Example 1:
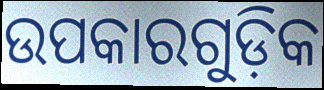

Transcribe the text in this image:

ଉପକାରଗୁଡ଼ିକ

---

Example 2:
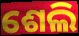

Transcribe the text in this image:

ଶେଲି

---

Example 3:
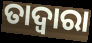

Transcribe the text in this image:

ତାଦ୍ବାରା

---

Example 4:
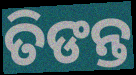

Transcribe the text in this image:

ତିଙନ୍ତ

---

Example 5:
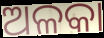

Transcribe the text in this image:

ଅଳକା